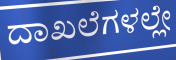
ದಾಖಲೆಗಳಲ್ಲೇ